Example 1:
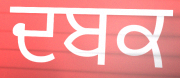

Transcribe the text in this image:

ਦਬਕ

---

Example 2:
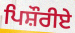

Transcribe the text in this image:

ਪਿਸ਼ੌਰੀਏ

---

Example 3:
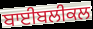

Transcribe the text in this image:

ਬਾਈਬਲੀਕਲ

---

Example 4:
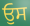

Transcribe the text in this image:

ਓੁਸ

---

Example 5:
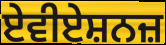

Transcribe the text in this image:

ਏਵੀਏਸ਼ਨਜ਼